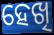
ହେଖି